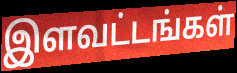
இளவட்டங்கள்